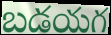
బడయగ